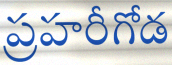
ప్రహరీగోడ